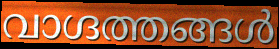
വാഗ്ദത്തങ്ങൾ